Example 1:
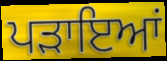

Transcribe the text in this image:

ਪੜਾਇਆਂ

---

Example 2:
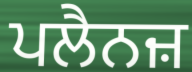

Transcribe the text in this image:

ਪਲੈਨਜ਼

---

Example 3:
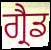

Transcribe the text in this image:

ਗ੍ਰੈਡ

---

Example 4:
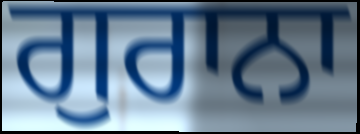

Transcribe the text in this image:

ਗੁਰਾਨਾ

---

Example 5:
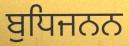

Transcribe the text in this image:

ਬੁਧਿਜਨਨ